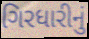
ગિરધારીનું